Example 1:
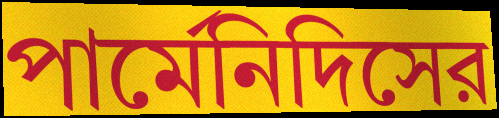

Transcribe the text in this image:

পার্মেনিদিসের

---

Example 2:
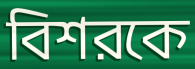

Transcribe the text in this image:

বিশরকে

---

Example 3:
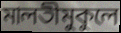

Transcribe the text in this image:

মালতীমুকুলে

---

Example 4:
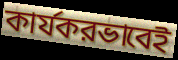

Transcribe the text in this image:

কার্যকরভাবেই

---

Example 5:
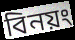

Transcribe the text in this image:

বিনয়ং